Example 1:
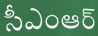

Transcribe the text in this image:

సీఎంఆర్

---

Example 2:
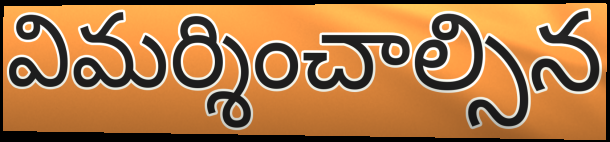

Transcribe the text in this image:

విమర్శించాల్సిన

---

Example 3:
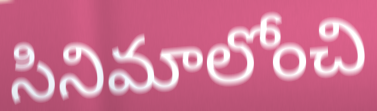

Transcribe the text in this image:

సినిమాలోంచి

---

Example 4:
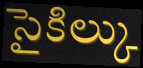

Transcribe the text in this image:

సైకిల్కు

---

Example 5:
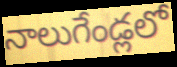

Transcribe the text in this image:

నాలుగేండ్లలో